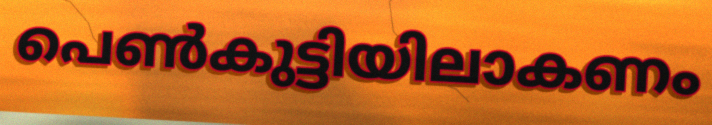
പെൺകുട്ടിയിലാകണം